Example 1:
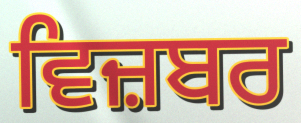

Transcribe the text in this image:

ਵਿਜ਼ਬਰ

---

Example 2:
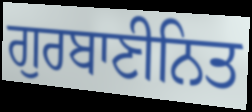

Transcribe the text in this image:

ਗੁਰਬਾਣੀਨਿਤ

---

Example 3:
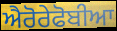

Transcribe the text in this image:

ਐਰੋਰੇਫੋਬੀਆ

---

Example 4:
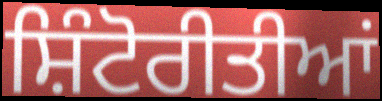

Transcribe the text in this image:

ਸ਼ਿੰਟੋਰੀਤੀਆਂ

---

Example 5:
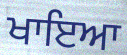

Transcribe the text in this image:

ਖਾਇਆ